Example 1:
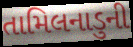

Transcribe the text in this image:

તામિલનાડુની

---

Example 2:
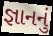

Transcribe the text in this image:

જ્ઞાનનું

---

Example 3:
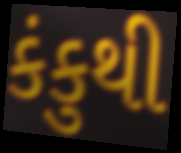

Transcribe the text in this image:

કંકુથી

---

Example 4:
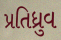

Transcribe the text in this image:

પ્રતિધ્રુવ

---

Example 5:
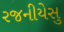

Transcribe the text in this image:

રજનીયેસુ